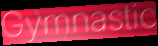
Gymnastic